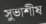
সুভাশীষ